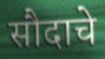
सौदाचे